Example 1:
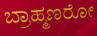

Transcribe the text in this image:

ಬ್ರಾಹ್ಮಣರೋ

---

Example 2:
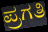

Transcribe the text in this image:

ಪ್ರಗತಿ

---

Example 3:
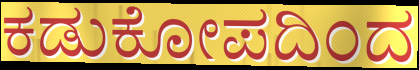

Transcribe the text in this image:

ಕಡುಕೋಪದಿಂದ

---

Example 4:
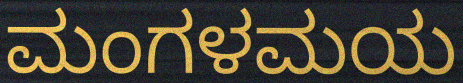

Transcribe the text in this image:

ಮಂಗಳಮಯ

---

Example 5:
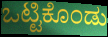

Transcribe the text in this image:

ಒಟ್ಟಿಕೊಂಡು